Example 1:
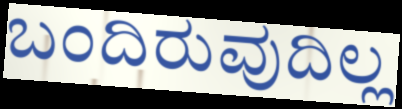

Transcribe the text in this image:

ಬಂದಿರುವುದಿಲ್ಲ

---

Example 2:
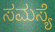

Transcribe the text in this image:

ಸಮಸ್ಯೆ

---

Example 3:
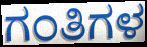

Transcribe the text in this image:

ಗಂತಿಗಳ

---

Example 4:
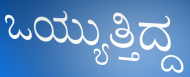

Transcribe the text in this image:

ಒಯ್ಯುತ್ತಿದ್ದ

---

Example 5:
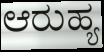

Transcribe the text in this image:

ಆರುಹ್ಯ